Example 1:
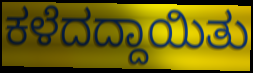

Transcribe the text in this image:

ಕಳೆದದ್ದಾಯಿತು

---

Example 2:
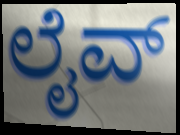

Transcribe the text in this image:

ಲೈವ್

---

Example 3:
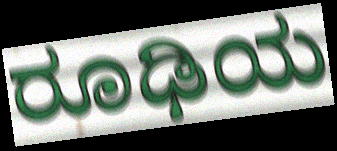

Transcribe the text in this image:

ರೂಢಿಯ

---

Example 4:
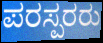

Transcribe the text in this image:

ಪರಸ್ಪರರು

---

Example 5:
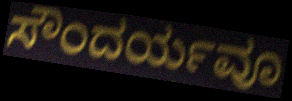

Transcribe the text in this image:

ಸೌಂದರ್ಯವೂ